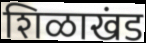
शिळाखंड